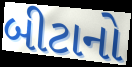
બીટાનો